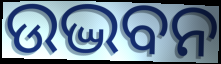
ଉଦ୍ଭବନ